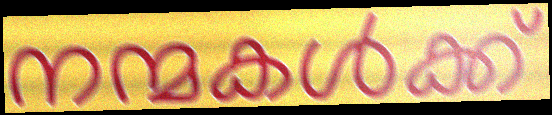
നന്മകൾക്ക്